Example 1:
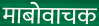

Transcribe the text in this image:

माबोवाचक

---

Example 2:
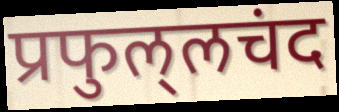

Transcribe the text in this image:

प्रफुल्लचंद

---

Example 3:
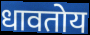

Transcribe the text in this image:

धावतोय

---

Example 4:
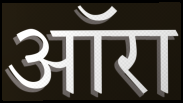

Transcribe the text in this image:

ऑरा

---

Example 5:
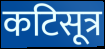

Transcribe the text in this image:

कटिसूत्र